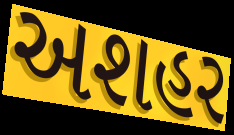
અશહર